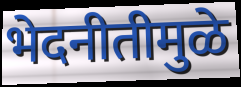
भेदनीतीमुळे